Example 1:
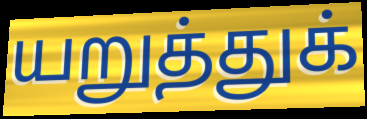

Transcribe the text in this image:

யறுத்துக்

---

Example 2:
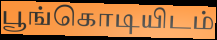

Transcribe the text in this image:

பூங்கொடியிடம்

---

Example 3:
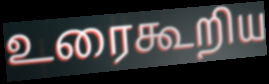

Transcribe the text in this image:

உரைகூறிய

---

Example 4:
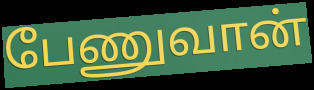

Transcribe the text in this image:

பேணுவான்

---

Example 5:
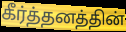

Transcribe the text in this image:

கீர்த்தனத்தின்